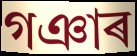
গঞাৰ